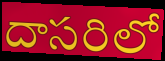
దాసరిలో